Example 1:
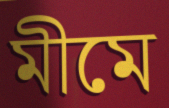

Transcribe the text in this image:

মীমে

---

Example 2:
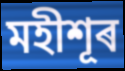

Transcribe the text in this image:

মহীশূৰ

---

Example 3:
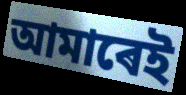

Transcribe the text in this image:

আমাৰেই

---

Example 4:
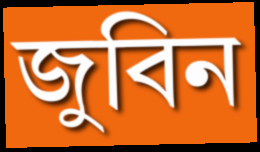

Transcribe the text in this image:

জুবিন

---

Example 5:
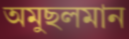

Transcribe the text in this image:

অমুছলমান